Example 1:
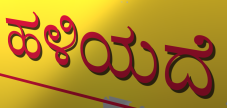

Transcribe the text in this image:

ಹಳಿಯದೆ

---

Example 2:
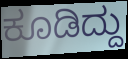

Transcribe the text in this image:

ಕೂಡಿದ್ದು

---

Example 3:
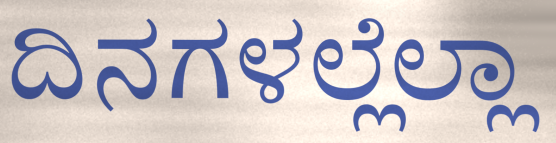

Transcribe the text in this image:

ದಿನಗಳಲ್ಲೆಲ್ಲಾ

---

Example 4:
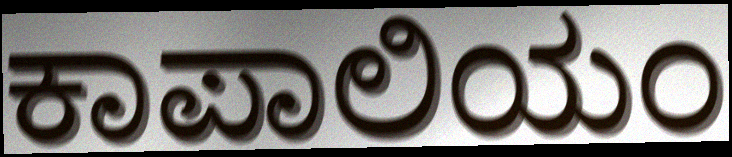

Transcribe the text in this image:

ಕಾಪಾಲಿಯಂ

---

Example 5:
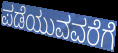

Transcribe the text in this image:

ಪಡೆಯುವವರೆಗೆ